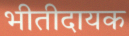
भीतीदायक